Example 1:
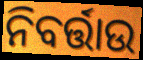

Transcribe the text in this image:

ନିବର୍ତ୍ତାଉ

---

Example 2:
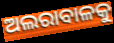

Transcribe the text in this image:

ଅଲରାବାଳକୁ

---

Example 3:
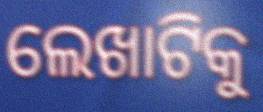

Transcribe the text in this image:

ଲେଖାଟିକୁ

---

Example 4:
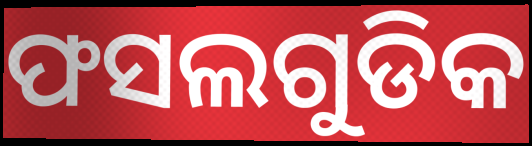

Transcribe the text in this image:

ଫସଲଗୁଡିକ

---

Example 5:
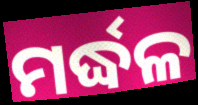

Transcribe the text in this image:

ମର୍ଦ୍ଧଳ